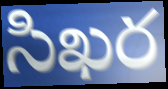
సిఖర